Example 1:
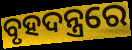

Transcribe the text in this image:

ବୃହଦନ୍ତ୍ରରେ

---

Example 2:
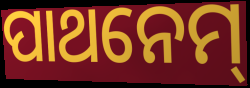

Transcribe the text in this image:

ପାଥନେମ୍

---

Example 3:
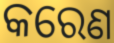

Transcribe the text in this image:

କରେଣ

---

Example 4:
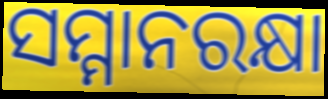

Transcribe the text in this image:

ସମ୍ମାନରକ୍ଷା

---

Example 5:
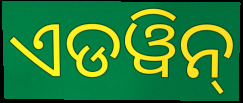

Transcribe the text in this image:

ଏଡୱିନ୍